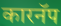
कारनॅप